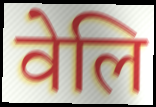
वेलि